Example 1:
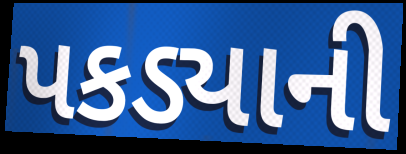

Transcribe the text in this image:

પકડ્યાની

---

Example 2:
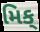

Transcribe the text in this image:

મિક્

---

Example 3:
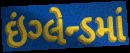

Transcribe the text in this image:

ઇંગ્લેન્ડમાં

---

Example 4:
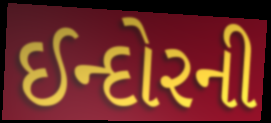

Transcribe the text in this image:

ઈન્દોરની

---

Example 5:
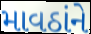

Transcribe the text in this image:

માવઠાંને